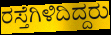
ರಸ್ತೆಗಿಳಿದಿದ್ದರು